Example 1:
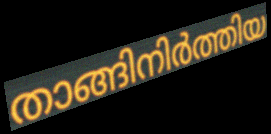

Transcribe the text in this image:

താങ്ങിനിർത്തിയ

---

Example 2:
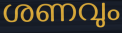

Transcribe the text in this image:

ശണവും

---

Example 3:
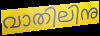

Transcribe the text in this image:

വാതിലിനു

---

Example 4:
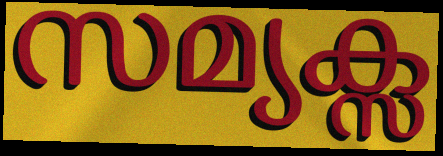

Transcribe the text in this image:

സമ്യക്സ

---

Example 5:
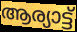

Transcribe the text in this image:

ആര്യാട്ട്